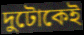
দুটোকেই